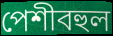
পেশীবহুল